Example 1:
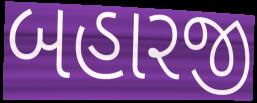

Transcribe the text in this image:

બહારજી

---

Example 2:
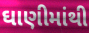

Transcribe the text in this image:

ઘાણીમાંથી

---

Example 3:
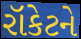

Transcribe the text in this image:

રૉકેટને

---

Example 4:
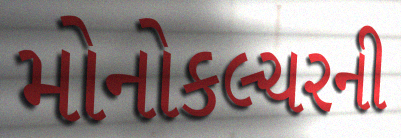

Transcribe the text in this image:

મોનોકલ્ચરની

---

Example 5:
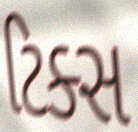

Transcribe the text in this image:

ટિક્સ